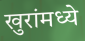
खुरांमध्ये